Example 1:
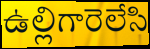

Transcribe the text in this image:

ఉల్లిగారెలేసి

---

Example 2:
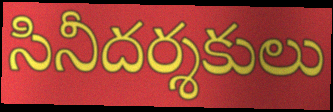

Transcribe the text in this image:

సినీదర్శకులు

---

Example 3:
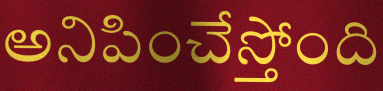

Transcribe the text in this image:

అనిపించేస్తోంది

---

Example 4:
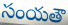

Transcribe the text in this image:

సంయతౌ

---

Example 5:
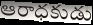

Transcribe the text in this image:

ఆరాధకుడు